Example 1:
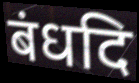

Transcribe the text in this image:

बंधदि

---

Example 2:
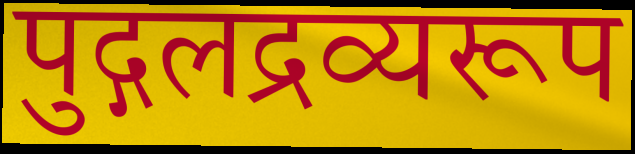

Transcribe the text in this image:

पुद्गलद्रव्यरूप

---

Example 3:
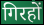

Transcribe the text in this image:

गिरहों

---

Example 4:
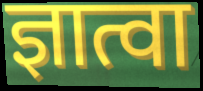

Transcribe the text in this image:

ज्ञात्वा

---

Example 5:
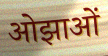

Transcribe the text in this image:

ओझाओं